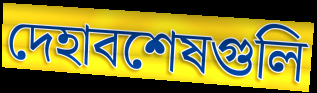
দেহাবশেষগুলি